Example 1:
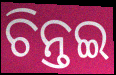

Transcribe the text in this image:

ଚିନ୍ତଇ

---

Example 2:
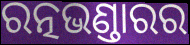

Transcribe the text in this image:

ରତ୍ନଭଣ୍ଡାରର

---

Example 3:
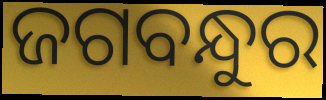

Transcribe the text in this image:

ଜଗବନ୍ଧୁର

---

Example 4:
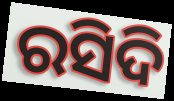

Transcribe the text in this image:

ରସିଦି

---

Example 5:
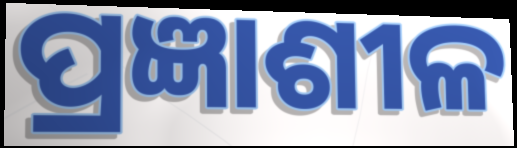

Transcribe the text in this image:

ପ୍ରଜ୍ଞାଶୀଳ